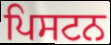
ਪਿਸਟਨ